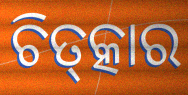
ଚିତ୍‌ତ୍କାର